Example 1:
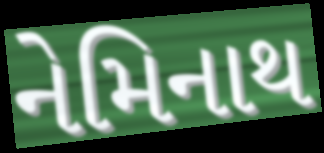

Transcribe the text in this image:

નેમિનાથ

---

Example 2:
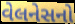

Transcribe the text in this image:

વેલનેસનો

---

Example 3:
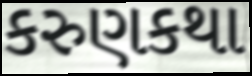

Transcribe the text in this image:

કરુણકથા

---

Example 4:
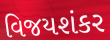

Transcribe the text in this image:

વિજયશંકર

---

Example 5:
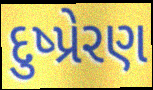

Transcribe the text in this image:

દુષ્પ્રેરણ